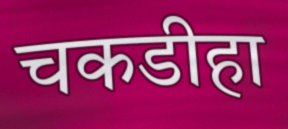
चकडीहा